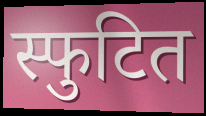
स्फुटित